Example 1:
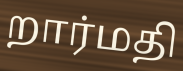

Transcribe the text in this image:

றார்மதி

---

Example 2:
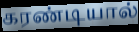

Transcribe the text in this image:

கரண்டியால்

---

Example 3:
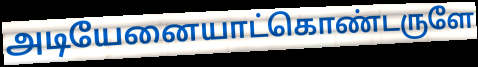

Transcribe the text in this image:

அடியேனையாட்கொண்டருளே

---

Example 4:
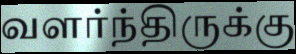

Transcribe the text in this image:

வளர்ந்திருக்கு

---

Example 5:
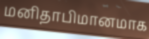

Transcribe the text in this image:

மனிதாபிமானமாக